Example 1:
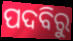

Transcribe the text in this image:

ପଦବିରୁ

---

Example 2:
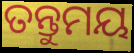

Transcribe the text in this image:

ତନ୍ତୁମୟ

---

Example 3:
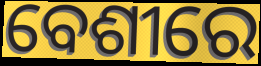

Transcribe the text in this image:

ବେଶୀରେ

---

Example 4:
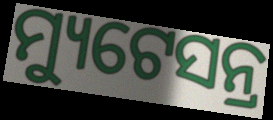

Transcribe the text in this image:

ମ୍ୟୁଟେସନ୍ର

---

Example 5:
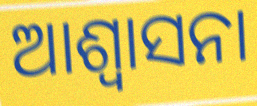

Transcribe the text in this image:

ଆଶ୍ୱାସନା